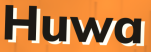
Huwa